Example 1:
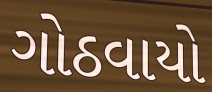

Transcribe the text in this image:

ગોઠવાયો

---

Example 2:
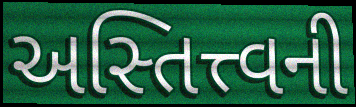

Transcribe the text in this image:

અસ્તિત્ત્વની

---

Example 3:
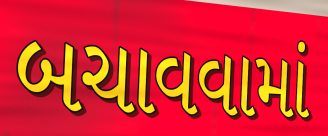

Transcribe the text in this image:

બચાવવામાં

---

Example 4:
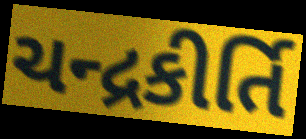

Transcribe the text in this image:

ચન્દ્રકીર્તિ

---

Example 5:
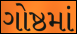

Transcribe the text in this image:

ગોષ્ઠમાં